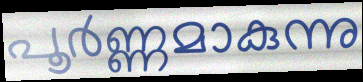
പൂർണ്ണമാകുന്നു